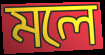
মলে